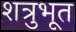
शत्रुभूत